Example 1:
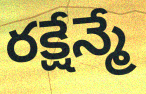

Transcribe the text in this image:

రక్షేన్మే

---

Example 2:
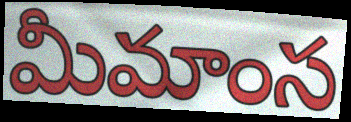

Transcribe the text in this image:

మీమాంస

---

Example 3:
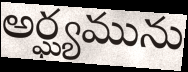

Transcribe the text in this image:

అర్ఘ్యమును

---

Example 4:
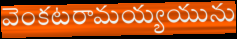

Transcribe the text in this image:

వెంకటరామయ్యయును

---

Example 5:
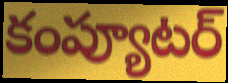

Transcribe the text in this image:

కంప్యూటర్